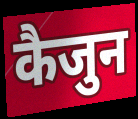
कैजुन